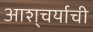
आश्चर्याची